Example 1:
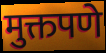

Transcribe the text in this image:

मुक्तपणे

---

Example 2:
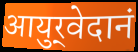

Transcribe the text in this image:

आयुर्वेदानं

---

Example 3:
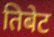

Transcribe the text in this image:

तिबेट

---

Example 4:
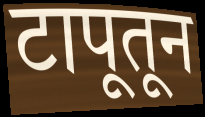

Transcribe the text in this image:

टापूतून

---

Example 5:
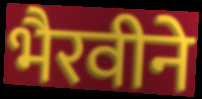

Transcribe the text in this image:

भैरवीने